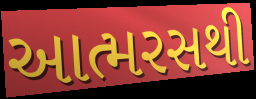
આત્મરસથી